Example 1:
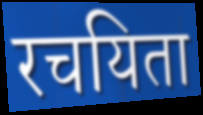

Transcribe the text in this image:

रचयिता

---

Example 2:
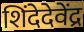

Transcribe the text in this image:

शिंदेदेवेंद्र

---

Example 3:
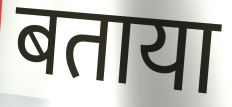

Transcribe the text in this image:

बताया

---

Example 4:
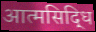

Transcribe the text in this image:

आत्मसिद्धि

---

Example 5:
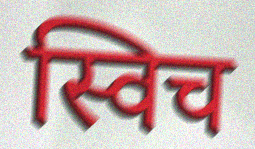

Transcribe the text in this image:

स्विच